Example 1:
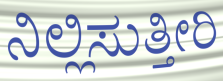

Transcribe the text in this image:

ನಿಲ್ಲಿಸುತ್ತೀರಿ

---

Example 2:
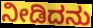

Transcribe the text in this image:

ನೀಡಿದನು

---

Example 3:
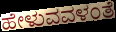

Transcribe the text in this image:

ಹೇಳುವವಳಂತೆ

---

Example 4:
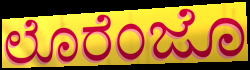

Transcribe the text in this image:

ಲೊರೆಂಜೊ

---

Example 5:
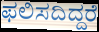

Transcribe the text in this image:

ಫಲಿಸದಿದ್ದರೆ